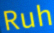
Ruh